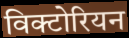
विक्टोरियन